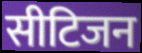
सीटिजन